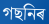
গছনিৰ